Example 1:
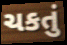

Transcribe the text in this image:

ચકતું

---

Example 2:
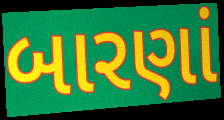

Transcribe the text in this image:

બારણાં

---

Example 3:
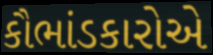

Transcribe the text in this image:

કૌભાંડકારોએ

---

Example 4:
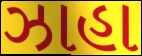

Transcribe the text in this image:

ઝાહા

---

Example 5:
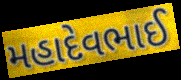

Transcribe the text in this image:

મહાદેવભાઈ